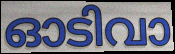
ഓടിവാ